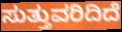
ಸುತ್ತುವರಿದಿದೆ